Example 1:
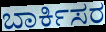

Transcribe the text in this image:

ಬಾರ್ಕಿಸರ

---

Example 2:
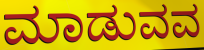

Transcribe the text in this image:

ಮಾಡುವವ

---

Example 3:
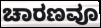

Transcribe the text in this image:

ಚಾರಣವೂ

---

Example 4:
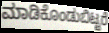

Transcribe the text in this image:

ಮಾಡಿಕೊಂಡುಬಿಟ್ಟರೆ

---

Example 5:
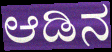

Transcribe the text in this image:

ಆಡಿನ